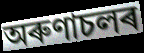
অৰুণাচলৰ